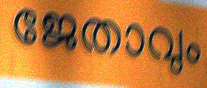
ജേതാവും